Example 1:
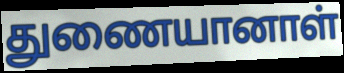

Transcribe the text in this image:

துணையானாள்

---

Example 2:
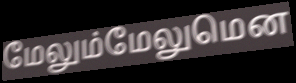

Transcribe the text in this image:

மேலும்மேலுமென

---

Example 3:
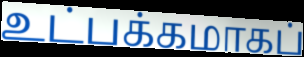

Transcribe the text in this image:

உட்பக்கமாகப்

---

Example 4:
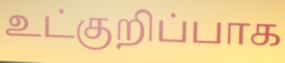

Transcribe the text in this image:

உட்குறிப்பாக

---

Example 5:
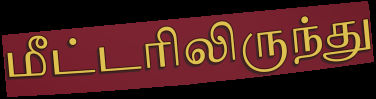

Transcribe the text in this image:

மீட்டரிலிருந்து